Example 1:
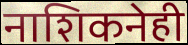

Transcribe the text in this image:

नाशिकनेही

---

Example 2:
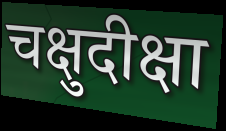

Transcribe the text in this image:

चक्षुदीक्षा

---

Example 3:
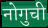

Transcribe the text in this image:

नोगुची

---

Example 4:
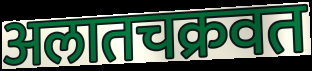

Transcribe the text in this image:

अलातचक्रवत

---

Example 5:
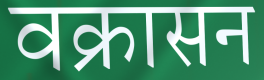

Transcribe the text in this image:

वक्रासन